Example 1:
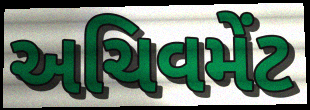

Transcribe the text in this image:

અચિવમેંટ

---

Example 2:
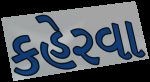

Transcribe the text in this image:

કહેરવા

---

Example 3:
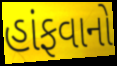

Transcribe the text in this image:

હાંફવાનો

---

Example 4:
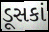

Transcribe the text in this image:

ડૂસકાં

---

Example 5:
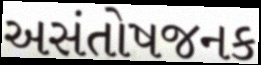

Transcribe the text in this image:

અસંતોષજનક